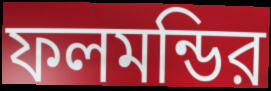
ফলমন্ডির